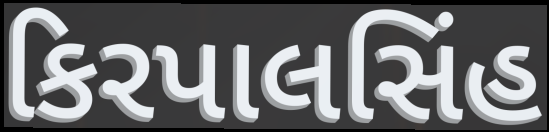
કિરપાલસિંહ